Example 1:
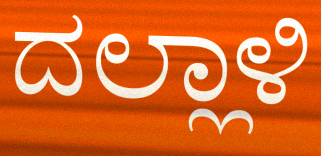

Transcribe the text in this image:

ದಲ್ಲಾಳಿ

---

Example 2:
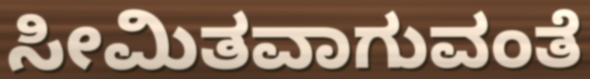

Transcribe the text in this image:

ಸೀಮಿತವಾಗುವಂತೆ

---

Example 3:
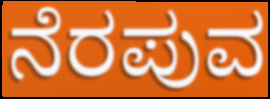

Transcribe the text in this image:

ನೆರಪುವ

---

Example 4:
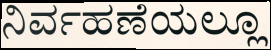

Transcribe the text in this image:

ನಿರ್ವಹಣೆಯಲ್ಲೂ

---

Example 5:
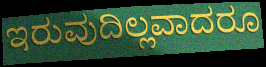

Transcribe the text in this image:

ಇರುವುದಿಲ್ಲವಾದರೂ